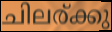
ചിലര്ക്കു